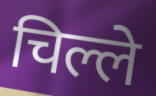
चिल्ले